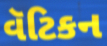
વૅટિકન